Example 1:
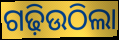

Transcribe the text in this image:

ଗଢ଼ିଉଠିଲା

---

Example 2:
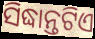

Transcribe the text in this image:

ସିଦ୍ଧାନ୍ତଟିଏ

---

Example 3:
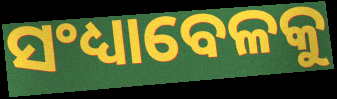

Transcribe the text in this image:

ସଂଧ୍ୟାବେଳକୁ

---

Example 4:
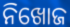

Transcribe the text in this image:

ନିଖୋଜ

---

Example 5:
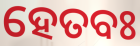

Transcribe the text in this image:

ହେତବଃ